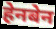
हेनबेन